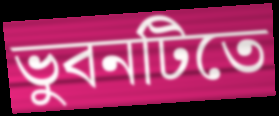
ভুবনটিতে